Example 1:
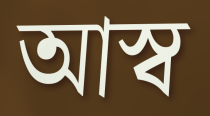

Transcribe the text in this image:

আস্ব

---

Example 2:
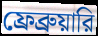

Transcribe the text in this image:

ফ্রেব্রুয়ারি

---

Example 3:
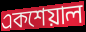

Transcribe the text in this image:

একশেয়াল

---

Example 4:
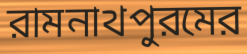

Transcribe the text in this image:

রামনাথপুরমের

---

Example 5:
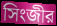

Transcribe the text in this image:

সিংজীর